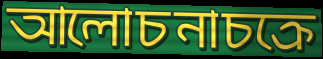
আলোচনাচক্রে